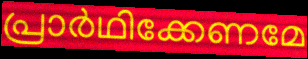
പ്രാർഥിക്കേണമേ